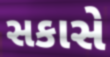
સકાસે